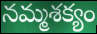
నమ్మశక్యం